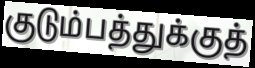
குடும்பத்துக்குத்